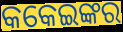
କକେଇଙ୍କର